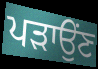
ਪੜਾਉਂਣ